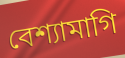
বেশ্যামাগি